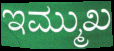
ಇಮ್ಮುಖ